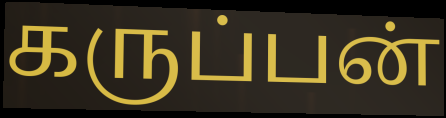
கருப்பன்